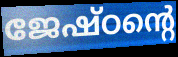
ജേഷ്ഠന്റെ